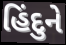
હિંદુને